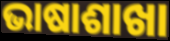
ଭାଷାଶାଖା